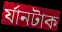
র্যানটাক